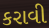
કરાવી